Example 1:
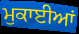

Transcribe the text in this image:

ਮੁਕਾਈਆਂ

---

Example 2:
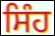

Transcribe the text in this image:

ਸਿੰਹ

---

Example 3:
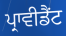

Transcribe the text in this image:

ਪ੍ਰਾਵੀਡੈਂਟ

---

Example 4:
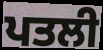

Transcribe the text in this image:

ਪਤਲੀ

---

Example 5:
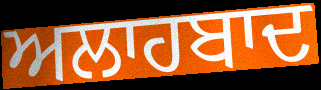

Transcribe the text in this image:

ਅਲਾਹਬਾਦ